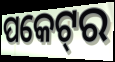
ପକେଟ୍‌ର